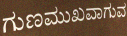
ಗುಣಮುಖವಾಗುವ